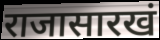
राजासारखं